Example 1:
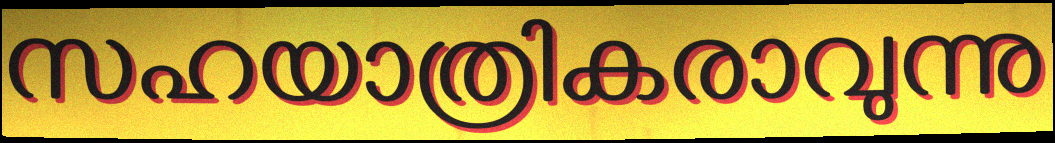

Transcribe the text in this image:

സഹയാത്രികരാവുന്നു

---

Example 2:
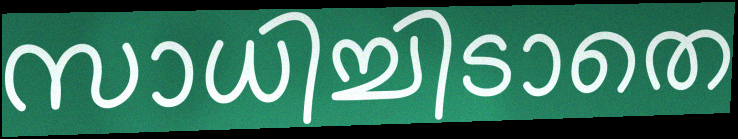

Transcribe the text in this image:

സാധിച്ചിടാതെ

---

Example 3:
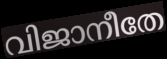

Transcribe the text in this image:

വിജാനീതേ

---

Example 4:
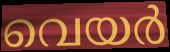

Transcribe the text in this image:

വെയർ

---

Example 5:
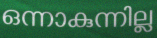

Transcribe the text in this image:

ഒന്നാകുന്നില്ല